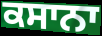
ਕਸਾਨਾ